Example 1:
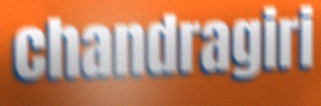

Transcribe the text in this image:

chandragiri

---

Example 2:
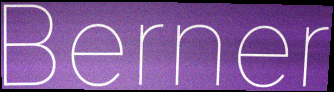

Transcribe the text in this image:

Berner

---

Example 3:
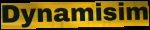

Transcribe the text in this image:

Dynamisim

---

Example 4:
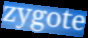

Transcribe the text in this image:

zygote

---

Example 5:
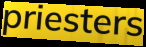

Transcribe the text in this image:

priesters